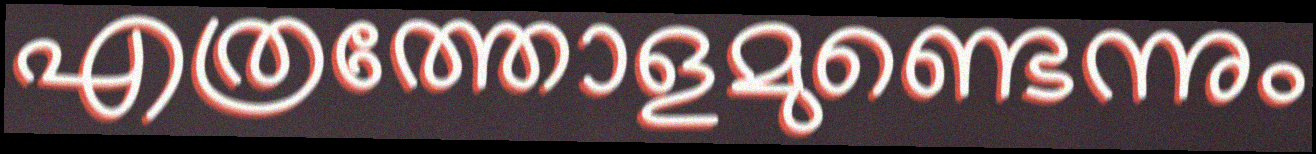
എത്രത്തോളമുണ്ടെന്നും